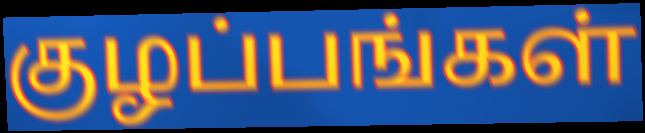
குழப்பங்கள்